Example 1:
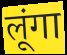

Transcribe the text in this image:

लूंगा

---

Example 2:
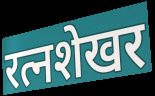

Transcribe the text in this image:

रत्नशेखर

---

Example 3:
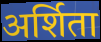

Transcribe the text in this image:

अर्शिता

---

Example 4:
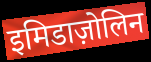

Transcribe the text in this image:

इमिडाज़ोलिन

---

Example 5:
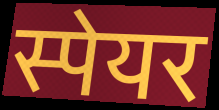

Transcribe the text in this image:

स्पेयर